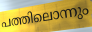
പത്തിലൊന്നും